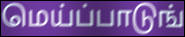
மெய்ப்பாடுங்